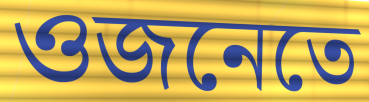
ওজনেতে